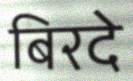
बिरदे